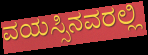
ವಯಸ್ಸಿನವರಲ್ಲಿ